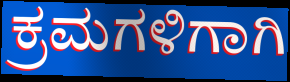
ಕ್ರಮಗಳಿಗಾಗಿ